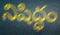
నిషిద్ధం